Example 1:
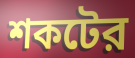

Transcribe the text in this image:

শকটের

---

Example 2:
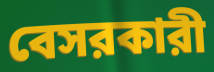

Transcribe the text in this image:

বেসরকারী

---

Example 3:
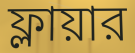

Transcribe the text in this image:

ফ্লায়ার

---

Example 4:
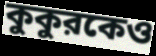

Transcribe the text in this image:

কুকুরকেও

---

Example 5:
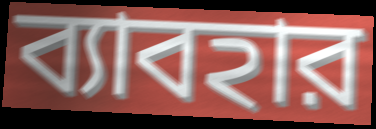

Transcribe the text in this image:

ব্যাবহার